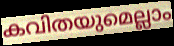
കവിതയുമെല്ലാം